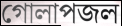
গোলাপজল